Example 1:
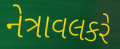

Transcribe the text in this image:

નેત્રાવલકરે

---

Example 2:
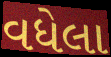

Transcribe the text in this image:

વધેલા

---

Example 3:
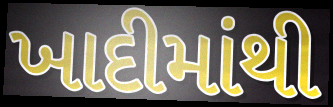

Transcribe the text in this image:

ખાદીમાંથી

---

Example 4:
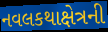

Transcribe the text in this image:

નવલકથાક્ષેત્રની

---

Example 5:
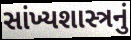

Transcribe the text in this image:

સાંખ્યશાસ્ત્રનું